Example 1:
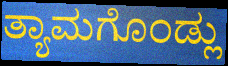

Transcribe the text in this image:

ತ್ಯಾಮಗೊಂಡ್ಲು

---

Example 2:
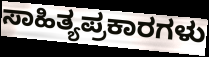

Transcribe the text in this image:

ಸಾಹಿತ್ಯಪ್ರಕಾರಗಳು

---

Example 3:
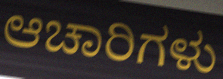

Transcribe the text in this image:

ಆಚಾರಿಗಳು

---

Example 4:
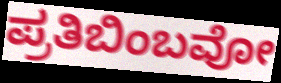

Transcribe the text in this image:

ಪ್ರತಿಬಿಂಬವೋ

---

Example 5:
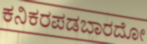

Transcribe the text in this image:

ಕನಿಕರಪಡಬಾರದೋ